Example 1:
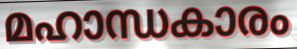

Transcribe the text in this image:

മഹാന്ധകാരം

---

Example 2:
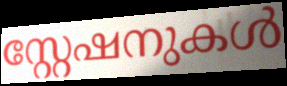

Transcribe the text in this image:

സ്റ്റേഷനുകൾ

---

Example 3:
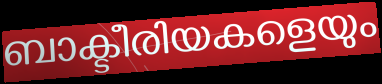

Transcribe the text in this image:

ബാക്ടീരിയകളെയും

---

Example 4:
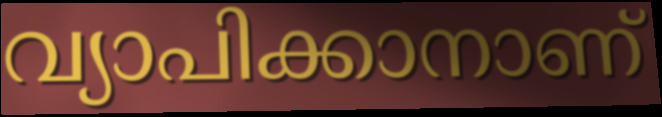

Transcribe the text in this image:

വ്യാപിക്കാനാണ്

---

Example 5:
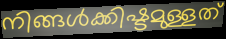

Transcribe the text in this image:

നിങ്ങൾക്കിഷ്ടമുള്ളത്